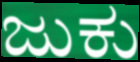
ಜುಕು